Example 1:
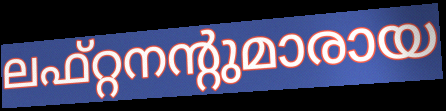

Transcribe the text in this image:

ലഫ്റ്റനന്റുമാരായ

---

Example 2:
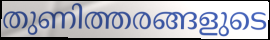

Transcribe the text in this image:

തുണിത്തരങ്ങളുടെ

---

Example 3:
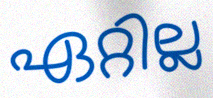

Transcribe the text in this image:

ഏറ്റില്ല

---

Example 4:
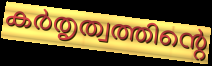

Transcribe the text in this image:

കർതൃത്വത്തിന്റെ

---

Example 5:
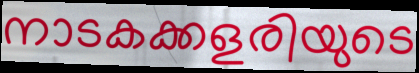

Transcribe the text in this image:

നാടകക്കളരിയുടെ